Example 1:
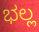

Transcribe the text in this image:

ಭಲ್ಲ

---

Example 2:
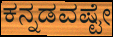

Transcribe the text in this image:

ಕನ್ನಡವಷ್ಟೇ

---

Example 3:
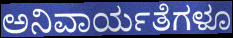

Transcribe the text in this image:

ಅನಿವಾರ್ಯತೆಗಳೂ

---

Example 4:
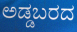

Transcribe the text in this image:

ಅಡ್ಡಬರದ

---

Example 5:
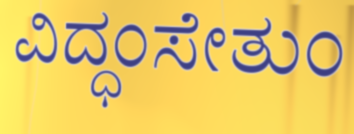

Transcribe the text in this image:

ವಿದ್ಧಂಸೇತುಂ